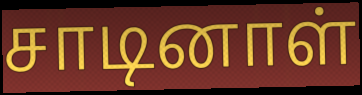
சாடினாள்